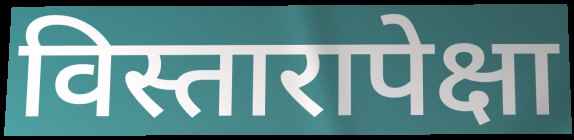
विस्तारापेक्षा